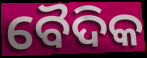
ବୈଦିକ